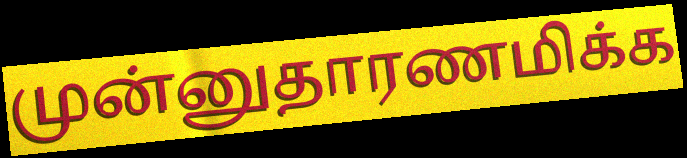
முன்னுதாரணமிக்க